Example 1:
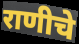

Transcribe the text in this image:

राणीचे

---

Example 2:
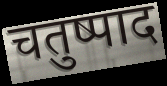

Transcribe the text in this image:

चतुष्पाद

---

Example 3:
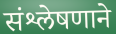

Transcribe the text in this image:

संश्लेषणाने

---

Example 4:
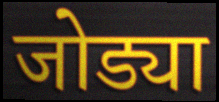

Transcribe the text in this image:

जोड्या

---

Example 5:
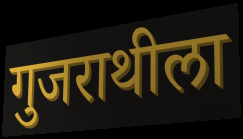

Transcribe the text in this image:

गुजराथीला